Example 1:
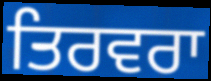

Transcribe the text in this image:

ਤਿਰਵਰਾ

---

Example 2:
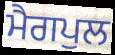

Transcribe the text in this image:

ਮੈਗਪੁਲ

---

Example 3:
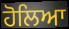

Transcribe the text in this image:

ਹੋਲਿਆ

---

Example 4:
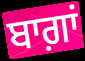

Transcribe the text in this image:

ਬਾਗ਼ਾਂ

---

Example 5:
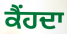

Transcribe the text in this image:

ਕੈਂਹਦਾ